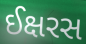
ઈક્ષરસ